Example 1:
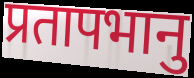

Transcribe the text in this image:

प्रतापभानु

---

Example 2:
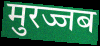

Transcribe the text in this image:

मुरज्जब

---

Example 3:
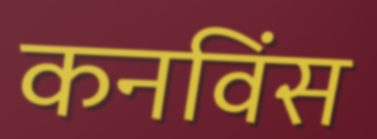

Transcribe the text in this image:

कनविंस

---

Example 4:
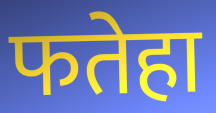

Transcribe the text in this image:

फतेहा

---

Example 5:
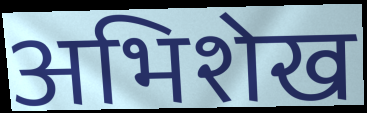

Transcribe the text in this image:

अभिशेख